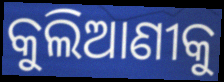
କୁଲିଆଣୀକୁ